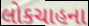
લોકચાહના